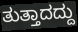
ತುತ್ತಾದದ್ದು